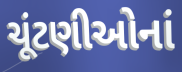
ચૂંટણીઓનાં